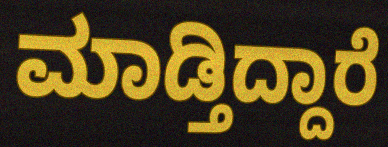
ಮಾಡ್ತಿದ್ದಾರೆ